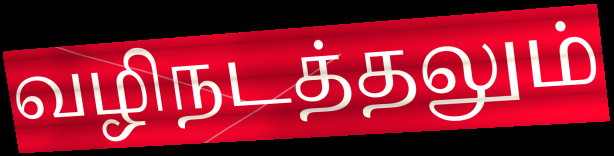
வழிநடத்தலும்